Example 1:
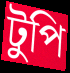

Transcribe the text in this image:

টুপি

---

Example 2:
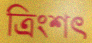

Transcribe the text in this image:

ত্ৰিংশৎ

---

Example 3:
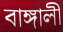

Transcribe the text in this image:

বাঙ্গালী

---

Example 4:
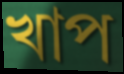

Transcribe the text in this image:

খাপ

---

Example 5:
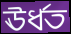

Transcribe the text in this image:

ঊৰ্ধত